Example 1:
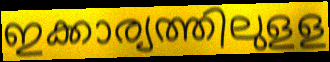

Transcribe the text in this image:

ഇക്കാര്യത്തിലുളള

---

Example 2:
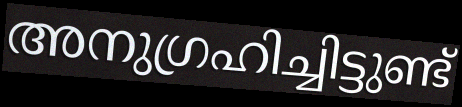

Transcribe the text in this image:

അനുഗ്രഹിച്ചിട്ടുണ്ട്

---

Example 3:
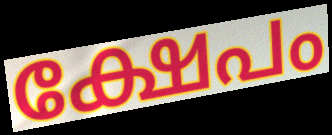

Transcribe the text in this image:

ക്ഷേപം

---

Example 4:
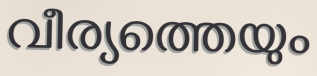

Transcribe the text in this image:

വീര്യത്തെയും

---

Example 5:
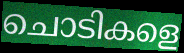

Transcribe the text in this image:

ചൊടികളെ